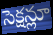
సెక్షన్లూ